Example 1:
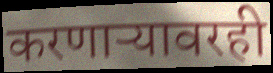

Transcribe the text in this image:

करणाऱ्यावरही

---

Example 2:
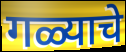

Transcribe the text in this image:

गळ्याचे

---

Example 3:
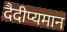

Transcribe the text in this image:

दैदीप्यमान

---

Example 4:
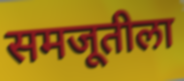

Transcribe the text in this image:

समजूतीला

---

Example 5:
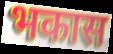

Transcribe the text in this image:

भकास